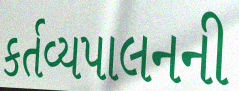
કર્તવ્યપાલનની